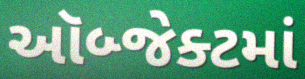
ઑબ્જેક્ટમાં